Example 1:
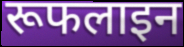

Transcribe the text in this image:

रूफलाइन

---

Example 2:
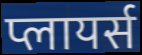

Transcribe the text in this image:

प्लायर्स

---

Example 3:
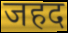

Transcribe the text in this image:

जहद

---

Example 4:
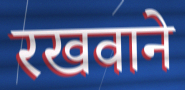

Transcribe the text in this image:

रखवाने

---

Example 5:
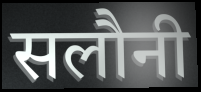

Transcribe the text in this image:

सलौनी